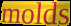
molds